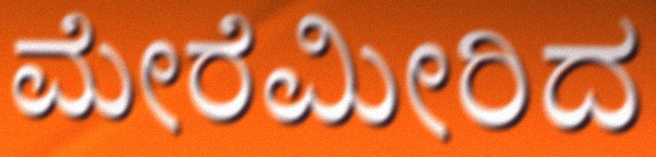
ಮೇರೆಮೀರಿದ